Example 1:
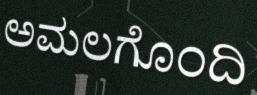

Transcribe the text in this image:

ಅಮಲಗೊಂದಿ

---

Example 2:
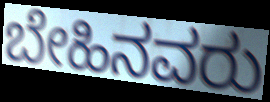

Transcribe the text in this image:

ಬೇಹಿನವರು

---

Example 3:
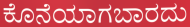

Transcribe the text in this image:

ಕೊನೆಯಾಗಬಾರದು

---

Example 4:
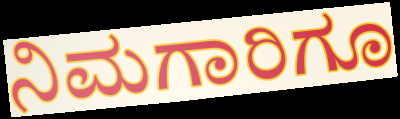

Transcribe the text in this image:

ನಿಮಗಾರಿಗೂ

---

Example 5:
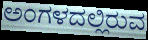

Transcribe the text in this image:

ಅಂಗಳದಲ್ಲಿರುವ